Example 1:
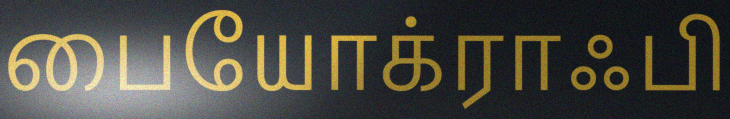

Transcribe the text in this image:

பையோக்ராஃபி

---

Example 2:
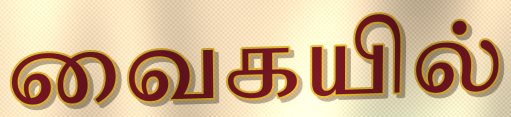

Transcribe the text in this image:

வைகயில்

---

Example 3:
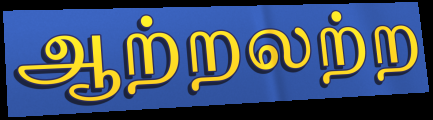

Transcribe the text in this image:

ஆற்றலற்ற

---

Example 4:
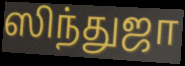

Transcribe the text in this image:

ஸிந்துஜா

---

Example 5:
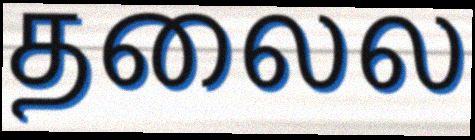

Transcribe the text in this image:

தலைல